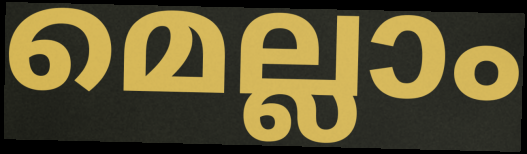
മെല്ലാം